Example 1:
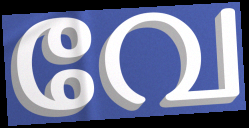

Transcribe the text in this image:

വേ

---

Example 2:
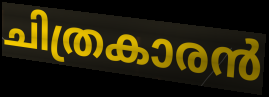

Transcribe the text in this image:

ചിത്രകാരൻ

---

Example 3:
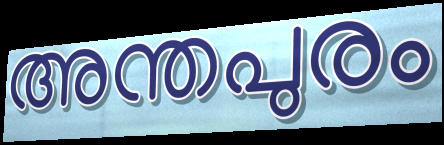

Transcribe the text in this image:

അന്തപുരം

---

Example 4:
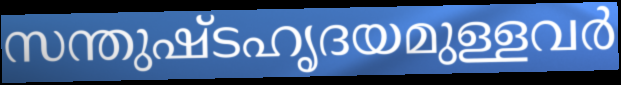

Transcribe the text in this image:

സന്തുഷ്ടഹൃദയമുള്ളവർ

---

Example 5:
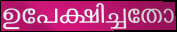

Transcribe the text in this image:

ഉപേക്ഷിച്ചതോ